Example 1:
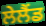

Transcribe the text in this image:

ਲੇਲੈਂਡ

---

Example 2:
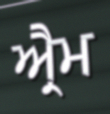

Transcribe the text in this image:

ਐ੍ਰਮ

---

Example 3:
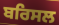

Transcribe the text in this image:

ਬਰਿਸਲ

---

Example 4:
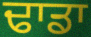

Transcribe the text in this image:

ਢਾਡਾ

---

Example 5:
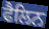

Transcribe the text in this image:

ਫੈਲਿਨ